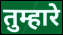
तुम्हारे